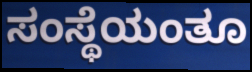
ಸಂಸ್ಥೆಯಂತೂ